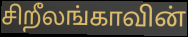
சிறீலங்காவின்